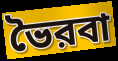
ভৈরবা